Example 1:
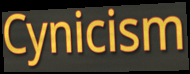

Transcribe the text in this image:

Cynicism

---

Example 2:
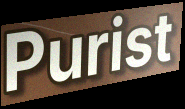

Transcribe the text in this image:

Purist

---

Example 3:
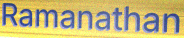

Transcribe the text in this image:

Ramanathan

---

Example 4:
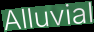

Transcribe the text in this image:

Alluvial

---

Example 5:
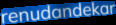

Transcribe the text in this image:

renudandekar